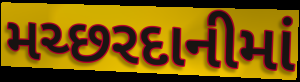
મચ્છરદાનીમાં